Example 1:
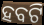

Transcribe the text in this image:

ହବଟି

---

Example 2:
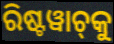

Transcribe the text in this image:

ରିଷ୍ଟୱାଚ୍‌କୁ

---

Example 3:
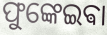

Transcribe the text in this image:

ଫୁଙ୍କେଇଵା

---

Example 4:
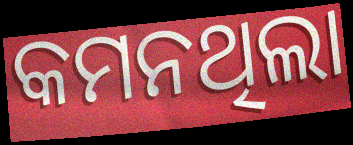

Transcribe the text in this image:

କମନଥିଲା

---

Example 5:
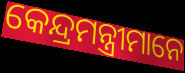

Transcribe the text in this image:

କେନ୍ଦ୍ରମନ୍ତ୍ରୀମାନେ